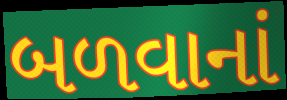
બળવાનાં